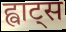
ह्वाट्स